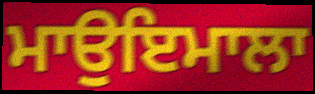
ਮਾਉਇਮਾਲਾ